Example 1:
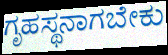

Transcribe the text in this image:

ಗೃಹಸ್ಥನಾಗಬೇಕು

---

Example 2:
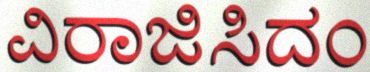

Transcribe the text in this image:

ವಿರಾಜಿಸಿದಂ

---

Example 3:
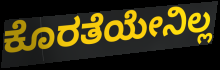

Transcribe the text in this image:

ಕೊರತೆಯೇನಿಲ್ಲ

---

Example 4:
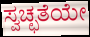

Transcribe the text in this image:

ಸ್ವಚ್ಛತೆಯೇ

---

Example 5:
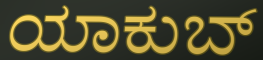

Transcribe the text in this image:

ಯಾಕುಬ್